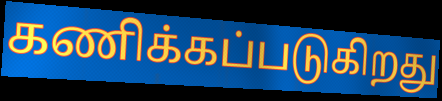
கணிக்கப்படுகிறது